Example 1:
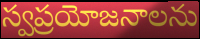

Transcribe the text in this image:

స్వప్రయోజనాలను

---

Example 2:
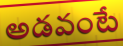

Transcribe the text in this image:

అడవంటే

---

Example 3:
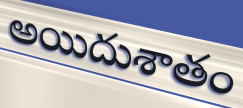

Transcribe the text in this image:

అయిదుశాతం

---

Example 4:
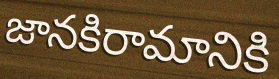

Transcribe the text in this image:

జానకిరామానికి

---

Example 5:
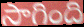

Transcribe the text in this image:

సాగింది